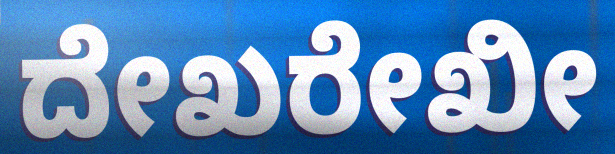
ದೇಖರೇಖೀ